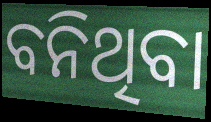
ବନିଥିବା